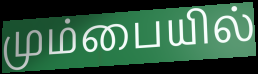
மும்பையில்